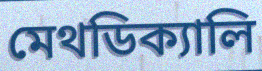
মেথডিক্যালি